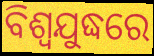
ବିଶ୍ବଯୁଦ୍ଧରେ